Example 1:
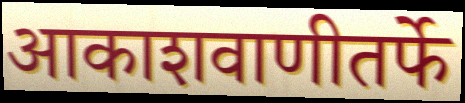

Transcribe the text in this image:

आकाशवाणीतर्फे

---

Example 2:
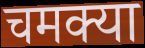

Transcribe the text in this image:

चमक्या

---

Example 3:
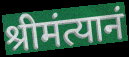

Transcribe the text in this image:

श्रीमंत्यानं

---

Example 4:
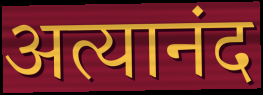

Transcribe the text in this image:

अत्यानंद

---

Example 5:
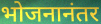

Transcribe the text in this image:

भोजनानंतर